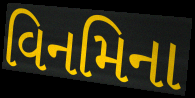
વિનમિના